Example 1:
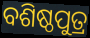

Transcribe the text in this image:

ବଶିଷ୍ଠପୁତ୍ର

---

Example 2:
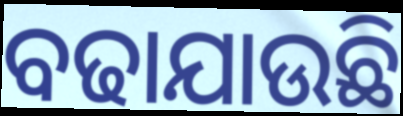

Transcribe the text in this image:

ବଢାଯାଉଛି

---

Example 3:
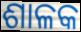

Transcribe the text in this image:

ଶାଳକ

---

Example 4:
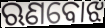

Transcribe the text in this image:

ଋଣବୋଝ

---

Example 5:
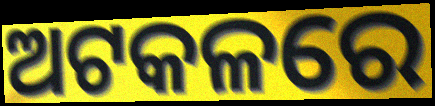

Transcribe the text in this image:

ଅଟକଳରେ